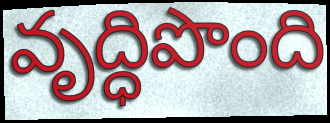
వృద్ధిపొంది